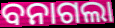
ବନାଗଲା